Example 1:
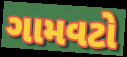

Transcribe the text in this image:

ગામવટો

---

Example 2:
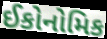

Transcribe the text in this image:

ઈકોનોમિક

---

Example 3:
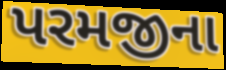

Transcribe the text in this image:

પરમજીના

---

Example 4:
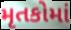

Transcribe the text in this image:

મૃતકોમાં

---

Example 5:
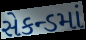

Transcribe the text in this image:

સેકન્ડમાં